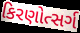
કિરણોત્સર્ગ